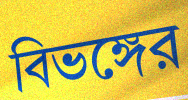
বিভঙ্গের